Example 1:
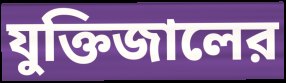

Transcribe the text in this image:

যুক্তিজালের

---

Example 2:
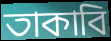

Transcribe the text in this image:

তাকাবি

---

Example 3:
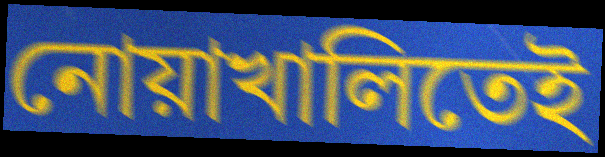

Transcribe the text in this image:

নোয়াখালিতেই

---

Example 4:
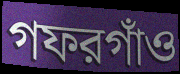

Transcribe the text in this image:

গফরগাঁও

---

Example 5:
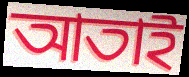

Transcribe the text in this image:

আতাই